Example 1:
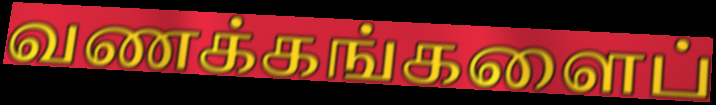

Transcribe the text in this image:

வணக்கங்களைப்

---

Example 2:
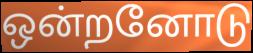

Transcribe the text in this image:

ஒன்றனோடு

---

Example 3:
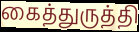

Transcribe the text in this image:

கைத்துருத்தி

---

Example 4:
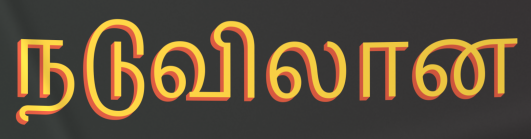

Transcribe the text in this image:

நடுவிலான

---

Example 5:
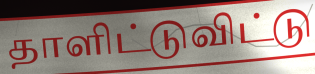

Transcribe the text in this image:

தாளிட்டுவிட்டு